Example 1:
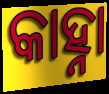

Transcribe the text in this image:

କାହ୍ନା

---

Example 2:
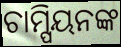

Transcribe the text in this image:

ଚାମ୍ପିୟନଙ୍କ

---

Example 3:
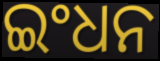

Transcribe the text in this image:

ଇଂଧନ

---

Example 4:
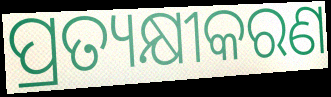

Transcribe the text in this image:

ପ୍ରତ୍ୟକ୍ଷୀକରଣ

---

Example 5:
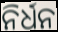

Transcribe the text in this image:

ନିର୍ଧନ